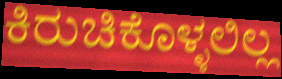
ಕಿರುಚಿಕೊಳ್ಳಲಿಲ್ಲ